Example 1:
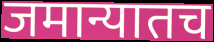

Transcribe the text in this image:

जमान्यातच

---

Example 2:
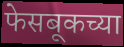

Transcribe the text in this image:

फेसबूकच्या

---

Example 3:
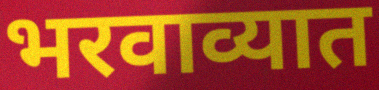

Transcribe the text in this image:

भरवाव्यात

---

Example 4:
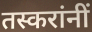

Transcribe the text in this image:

तस्करांनीं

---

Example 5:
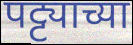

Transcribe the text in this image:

पट्ट्याच्या